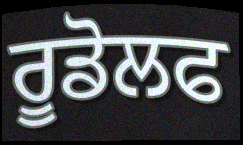
ਰੂਡੋਲਫ